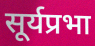
सूर्यप्रभा